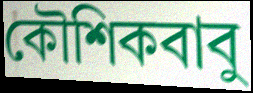
কৌশিকবাবু